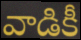
వాడికీ